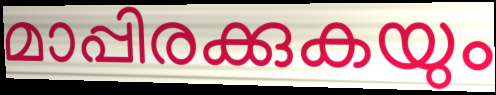
മാപ്പിരക്കുകയും